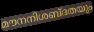
മൗനനിശബ്ദതയും